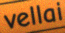
vellai